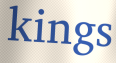
kings